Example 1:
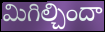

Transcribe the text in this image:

మిగిల్చిందా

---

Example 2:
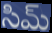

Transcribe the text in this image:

సిమ్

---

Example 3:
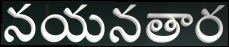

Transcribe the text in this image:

నయనతార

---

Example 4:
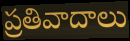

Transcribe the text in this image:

ప్రతివాదాలు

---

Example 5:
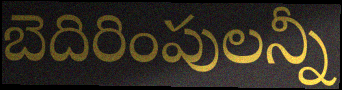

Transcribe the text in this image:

బెదిరింపులన్నీ